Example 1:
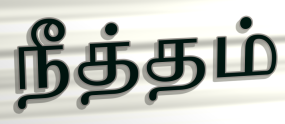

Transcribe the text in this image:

நீத்தம்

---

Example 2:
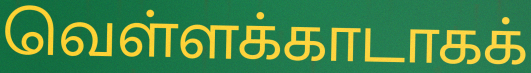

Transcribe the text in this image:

வெள்ளக்காடாகக்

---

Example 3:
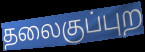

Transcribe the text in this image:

தலைகுப்புற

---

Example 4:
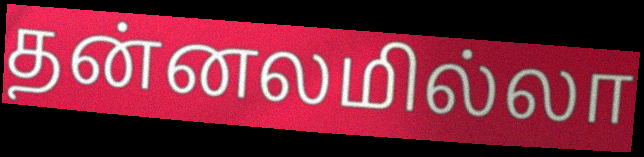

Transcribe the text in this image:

தன்னலமில்லா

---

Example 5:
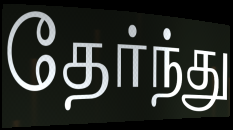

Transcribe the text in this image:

தேர்ந்து